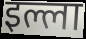
इल्ला